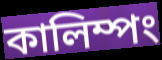
কালিম্পং